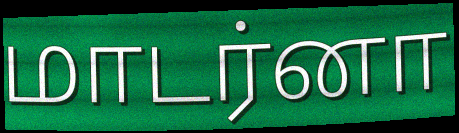
மாடர்னா